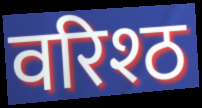
वरिश्ठ